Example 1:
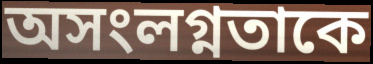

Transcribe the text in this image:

অসংলগ্নতাকে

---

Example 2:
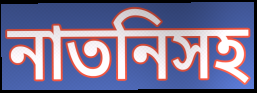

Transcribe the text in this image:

নাতনিসহ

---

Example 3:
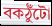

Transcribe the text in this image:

বকঠুঁটো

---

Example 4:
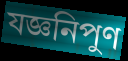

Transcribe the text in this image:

যজ্ঞনিপুণ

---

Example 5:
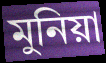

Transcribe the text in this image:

মুনিয়া